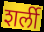
शर्ली